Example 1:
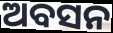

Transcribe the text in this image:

ଅବସନ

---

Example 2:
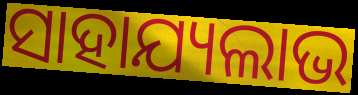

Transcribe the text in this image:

ସାହାଯ୍ୟଲାଭ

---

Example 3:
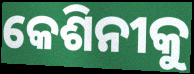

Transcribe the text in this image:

କେଶିନୀକୁ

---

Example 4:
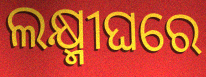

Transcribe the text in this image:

ଲକ୍ଷ୍ମୀଘରେ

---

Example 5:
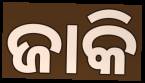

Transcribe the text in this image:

ଜାକି